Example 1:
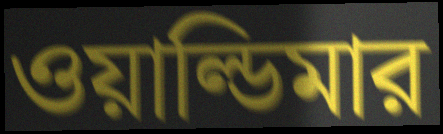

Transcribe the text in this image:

ওয়াল্ডিমার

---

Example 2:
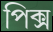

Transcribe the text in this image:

পিক্স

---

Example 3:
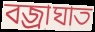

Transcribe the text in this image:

বজ্রাঘাত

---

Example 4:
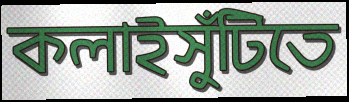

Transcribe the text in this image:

কলাইসুঁটিতে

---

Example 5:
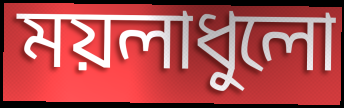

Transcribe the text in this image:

ময়লাধুলো